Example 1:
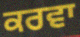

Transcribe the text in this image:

ਕਰਵਾ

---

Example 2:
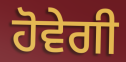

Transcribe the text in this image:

ਹੋਵੇਗੀ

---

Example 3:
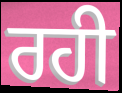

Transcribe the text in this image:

ਰਹੀ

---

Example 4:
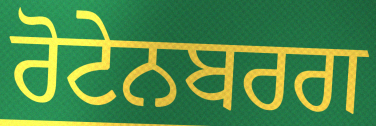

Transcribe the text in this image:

ਰੋਟੇਨਬਰਗ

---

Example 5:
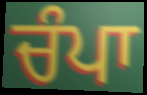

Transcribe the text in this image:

ਚੰਪਾ